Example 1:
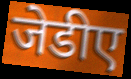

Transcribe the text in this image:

जेडीए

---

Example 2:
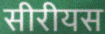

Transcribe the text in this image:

सीरीयस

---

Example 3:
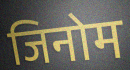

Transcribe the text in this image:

जिनोम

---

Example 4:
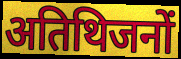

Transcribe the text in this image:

अतिथिजनों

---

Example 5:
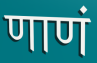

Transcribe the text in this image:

णाणं